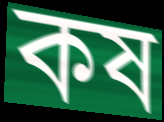
কষ